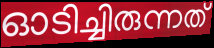
ഓടിച്ചിരുന്നത്